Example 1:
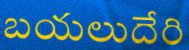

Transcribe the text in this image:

బయలుదేరి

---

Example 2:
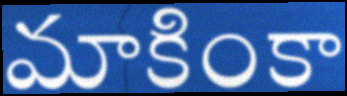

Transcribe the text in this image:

మాకింకా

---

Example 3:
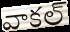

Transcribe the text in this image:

వాకల్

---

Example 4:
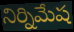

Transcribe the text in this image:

నిర్నిమేష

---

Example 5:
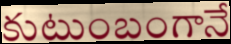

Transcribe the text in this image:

కుటుంబంగానే